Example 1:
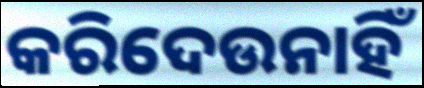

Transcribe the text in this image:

କରିଦେଉନାହିଁ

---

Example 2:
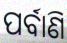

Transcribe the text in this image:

ପର୍ବାଣି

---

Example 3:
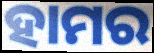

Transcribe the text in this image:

ହାମର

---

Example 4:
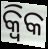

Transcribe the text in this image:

କ୍ୱିକ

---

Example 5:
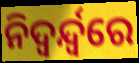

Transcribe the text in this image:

ନିଦ୍ଵର୍ନ୍ଦ୍ୱରେ